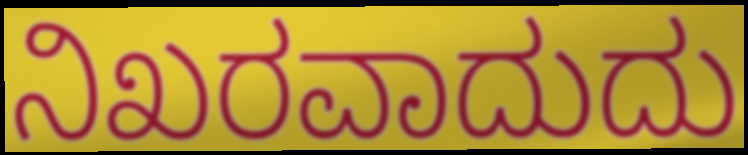
ನಿಖರವಾದುದು